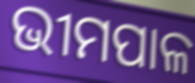
ଭୀମପାଳ